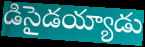
డిసైడయ్యాడు